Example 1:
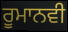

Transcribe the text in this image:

ਰੂਮਾਨਵੀ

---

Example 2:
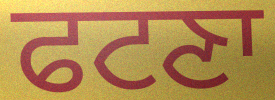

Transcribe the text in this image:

ਫਟਣਾ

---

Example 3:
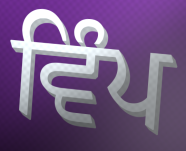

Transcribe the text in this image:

ਵਿੰਪ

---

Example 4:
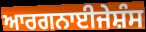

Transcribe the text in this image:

ਆਰਗਨਾਈਜੇਸ਼ੰਸ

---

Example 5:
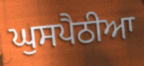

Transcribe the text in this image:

ਘੁਸਪੈਠੀਆ